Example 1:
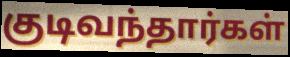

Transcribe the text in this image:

குடிவந்தார்கள்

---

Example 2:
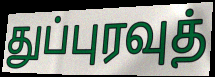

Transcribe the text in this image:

துப்புரவுத்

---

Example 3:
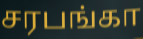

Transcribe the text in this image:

சரபங்கா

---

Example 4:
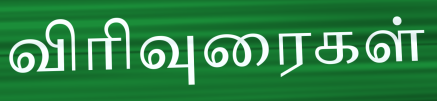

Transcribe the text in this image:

விரிவுரைகள்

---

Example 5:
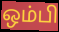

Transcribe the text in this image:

ஒம்பி